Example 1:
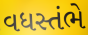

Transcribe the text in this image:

વધસ્તંભે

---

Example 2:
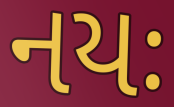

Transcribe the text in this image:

નયઃ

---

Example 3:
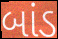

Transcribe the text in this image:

બાંડ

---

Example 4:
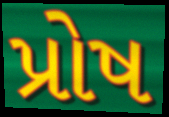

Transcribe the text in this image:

પ્રોષ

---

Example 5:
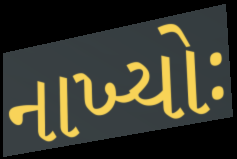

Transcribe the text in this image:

નાખ્યોઃ